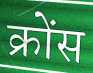
क्रोंस